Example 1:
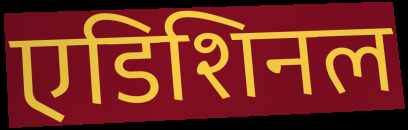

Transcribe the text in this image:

एडिशिनल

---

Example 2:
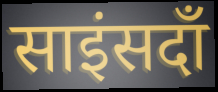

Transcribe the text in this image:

साइंसदाँ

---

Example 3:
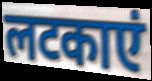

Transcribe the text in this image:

लटकाएं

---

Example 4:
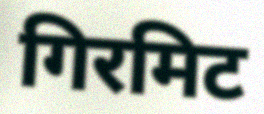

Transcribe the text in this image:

गिरमिट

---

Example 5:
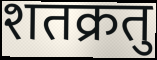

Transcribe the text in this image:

शतक्रतु